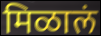
मिळालं